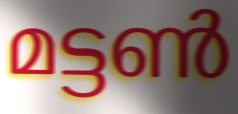
മട്ടൺ